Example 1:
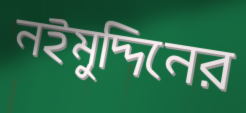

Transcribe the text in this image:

নইমুদ্দিনের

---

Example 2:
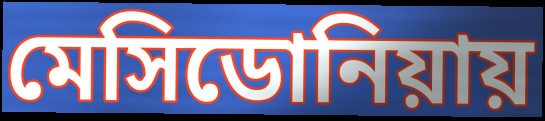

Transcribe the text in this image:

মেসিডোনিয়ায়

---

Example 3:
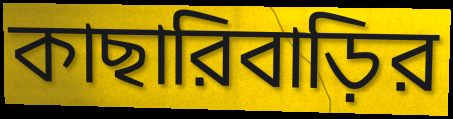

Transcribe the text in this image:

কাছারিবাড়ির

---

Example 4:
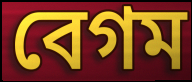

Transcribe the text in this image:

বেগম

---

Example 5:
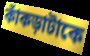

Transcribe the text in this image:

কাঁকড়াটাকে